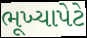
ભૂખ્યાપેટે